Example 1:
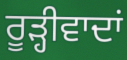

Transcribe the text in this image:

ਰੂੜ੍ਹੀਵਾਦਾਂ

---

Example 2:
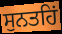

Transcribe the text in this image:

ਸੁਨਤਹਿਂ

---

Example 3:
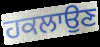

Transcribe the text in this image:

ਹਕਲਾਉਣ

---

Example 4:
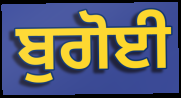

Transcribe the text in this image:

ਬੁਗੋਈ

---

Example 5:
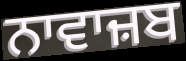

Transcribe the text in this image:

ਨਾਵਾਜ਼ਬ